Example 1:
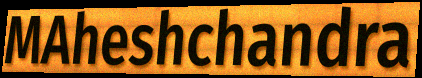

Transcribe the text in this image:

MAheshchandra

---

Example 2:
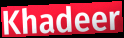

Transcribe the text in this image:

Khadeer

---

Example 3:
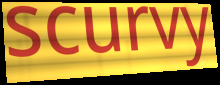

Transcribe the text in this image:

scurvy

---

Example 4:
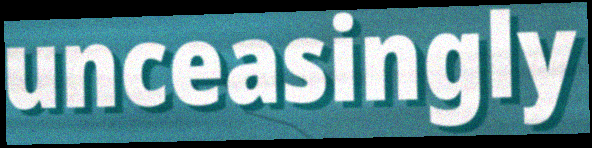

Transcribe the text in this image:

unceasingly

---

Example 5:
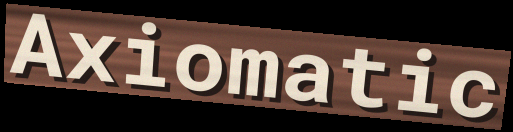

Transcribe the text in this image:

Axiomatic